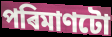
পৰিমাণটো